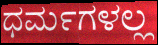
ಧರ್ಮಗಳಲ್ಲ